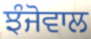
ਝੰਜੋਵਾਲ